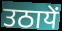
उठायें